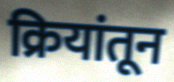
क्रियांतून